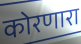
कोरणारा